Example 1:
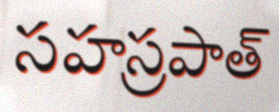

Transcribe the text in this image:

సహస్రపాత్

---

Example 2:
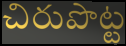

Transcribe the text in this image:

చిరుపొట్ట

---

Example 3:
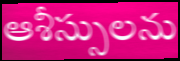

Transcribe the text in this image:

ఆశీస్సులను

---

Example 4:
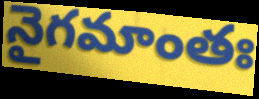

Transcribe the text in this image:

నైగమాంతః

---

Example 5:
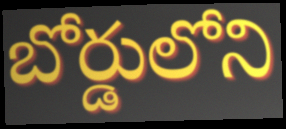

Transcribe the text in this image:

బోర్డులోని